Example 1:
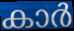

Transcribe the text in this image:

കാർ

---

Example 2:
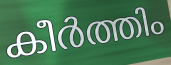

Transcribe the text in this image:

കീർത്തിം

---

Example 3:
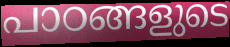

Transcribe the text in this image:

പാഠങ്ങളുടെ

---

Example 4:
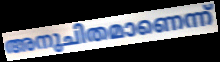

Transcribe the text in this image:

അനുചിതമാണെന്ന്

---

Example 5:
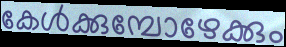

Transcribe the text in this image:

കേൾക്കുമ്പോഴേക്കും